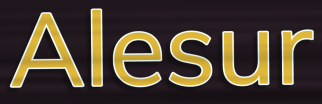
Alesur